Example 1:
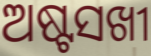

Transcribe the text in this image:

ଅଷ୍ଟସଖୀ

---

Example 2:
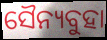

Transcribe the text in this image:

ସୈନ୍ୟବୁହା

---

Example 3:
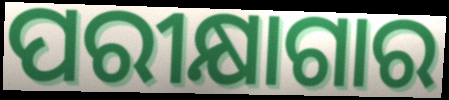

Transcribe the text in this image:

ପରୀକ୍ଷାଗାର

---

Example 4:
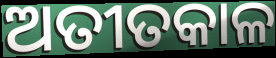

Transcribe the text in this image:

ଅତୀତକାଳ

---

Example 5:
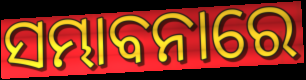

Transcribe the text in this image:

ସମ୍ଭାବନାରେ